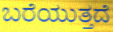
ಬರೆಯುತ್ತದೆ